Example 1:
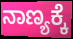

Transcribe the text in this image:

ನಾಣ್ಯಕ್ಕೆ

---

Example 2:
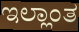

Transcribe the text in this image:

ಇಲ್ಲಾಂತ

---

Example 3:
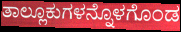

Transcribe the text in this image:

ತಾಲ್ಲೂಕುಗಳನ್ನೊಳಗೊಂಡ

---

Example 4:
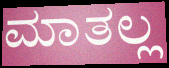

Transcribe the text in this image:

ಮಾತಲ್ಲ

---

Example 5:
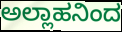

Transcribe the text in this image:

ಅಲ್ಲಾಹನಿಂದ